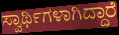
ಸ್ವಾರ್ಥಿಗಳಾಗಿದ್ದಾರೆ